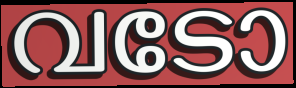
വടോ